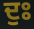
ਦੁਃ